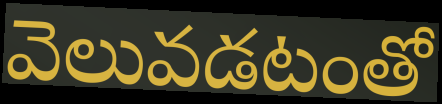
వెలువడటంతో